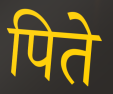
पिते